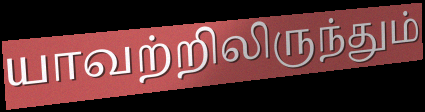
யாவற்றிலிருந்தும்